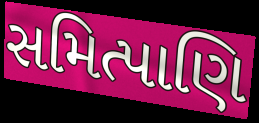
સમિત્પાણિ